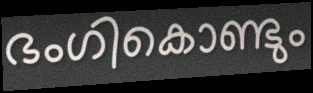
ഭംഗികൊണ്ടും